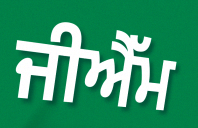
ਜੀਐੱਮ